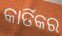
କାର୍ତିକର